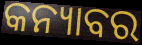
କନ୍ୟାବର